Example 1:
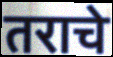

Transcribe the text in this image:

तराचे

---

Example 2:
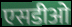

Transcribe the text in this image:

एसडीओ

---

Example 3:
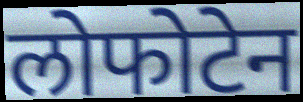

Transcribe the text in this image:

लोफोटेन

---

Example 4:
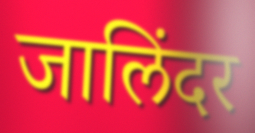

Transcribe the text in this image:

जालिंदर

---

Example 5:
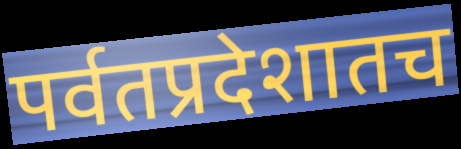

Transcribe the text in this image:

पर्वतप्रदेशातच